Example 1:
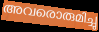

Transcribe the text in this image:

അവരൊരുമിച്ചു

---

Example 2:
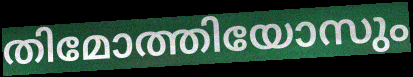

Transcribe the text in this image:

തിമോത്തിയോസും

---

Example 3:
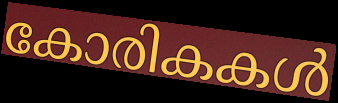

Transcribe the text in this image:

കോരികകൾ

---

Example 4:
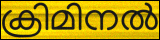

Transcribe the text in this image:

ക്രിമിനൽ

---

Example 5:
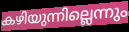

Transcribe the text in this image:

കഴിയുന്നില്ലെന്നും